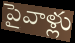
పైవాళ్లు